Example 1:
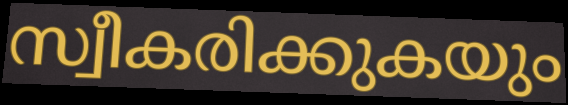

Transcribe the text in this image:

സ്വീകരിക്കുകയും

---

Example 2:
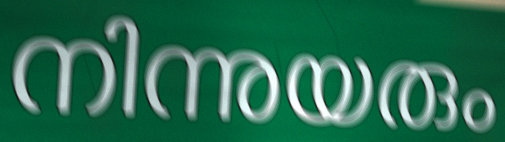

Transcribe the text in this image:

നിന്നുയരും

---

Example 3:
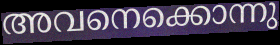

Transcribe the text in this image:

അവനെക്കൊന്നു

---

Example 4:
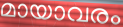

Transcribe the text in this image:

മായാവരം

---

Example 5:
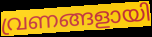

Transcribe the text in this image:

വ്രണങ്ങളായി